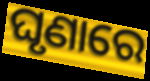
ଘୃଣାରେ